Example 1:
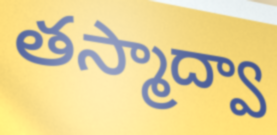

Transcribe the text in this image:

తస్మాద్వా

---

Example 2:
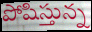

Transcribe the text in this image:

పోషిస్తున్న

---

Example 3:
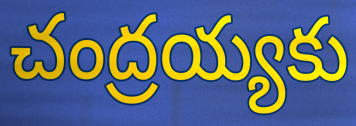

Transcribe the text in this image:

చంద్రయ్యకు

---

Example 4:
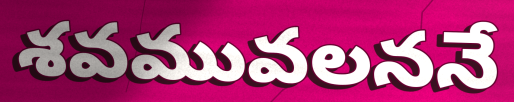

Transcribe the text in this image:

శవమువలననే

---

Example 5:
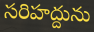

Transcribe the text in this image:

సరిహద్దును